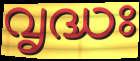
വൃദ്ധഃ